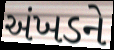
અંખડને